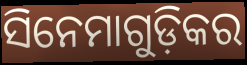
ସିନେମାଗୁଡ଼ିକର